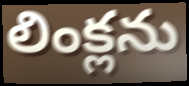
లింక్లను